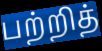
பற்றித்